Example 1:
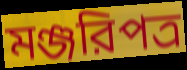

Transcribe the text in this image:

মঞ্জরিপত্র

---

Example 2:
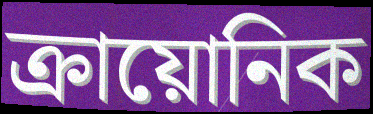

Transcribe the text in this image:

ক্রায়োনিক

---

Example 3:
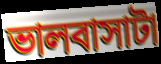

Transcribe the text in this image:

ভালবাসাটা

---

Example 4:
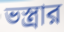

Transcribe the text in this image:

ভস্ত্রার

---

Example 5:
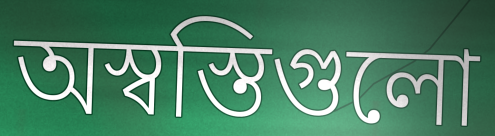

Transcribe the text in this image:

অস্বস্তিগুলো